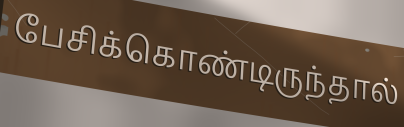
பேசிக்கொண்டிருந்தால்